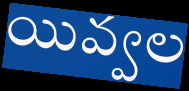
యివ్వల